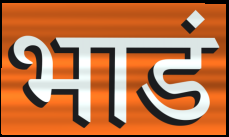
भाडं